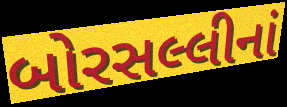
બોરસલ્લીનાં